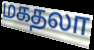
மகதலா